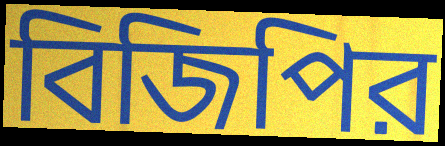
বিজিপির